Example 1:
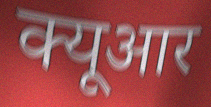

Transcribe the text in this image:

क्यूआर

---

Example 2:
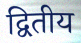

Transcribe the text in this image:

द्वितीय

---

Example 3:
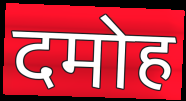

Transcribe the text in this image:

दमोह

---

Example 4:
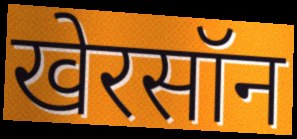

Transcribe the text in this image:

खेरसॉन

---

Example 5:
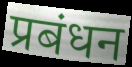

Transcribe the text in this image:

प्रबंधन